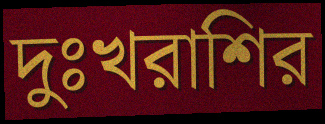
দুঃখরাশির